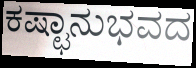
ಕಷ್ಟಾನುಭವದ